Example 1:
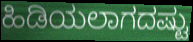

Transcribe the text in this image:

ಹಿಡಿಯಲಾಗದಷ್ಟು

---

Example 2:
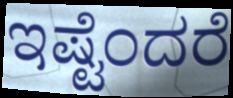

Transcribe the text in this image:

ಇಷ್ಟೆಂದರೆ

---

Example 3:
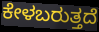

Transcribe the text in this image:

ಕೇಳಬರುತ್ತದೆ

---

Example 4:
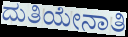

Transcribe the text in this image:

ದುತಿಯೇನಾತಿ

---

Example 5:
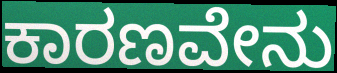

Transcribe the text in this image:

ಕಾರಣವೇನು